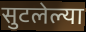
सुटलेल्या